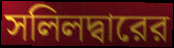
সলিলদ্বারের